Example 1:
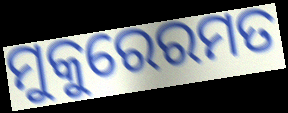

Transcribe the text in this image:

ମୁକୁରେରମତ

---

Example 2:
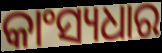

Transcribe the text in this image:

କାଂସ୍ୟଧାର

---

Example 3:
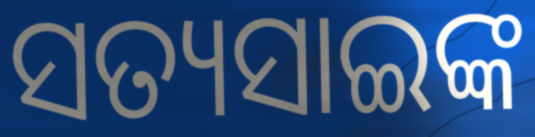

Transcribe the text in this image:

ସତ୍ୟସାଇଙ୍କ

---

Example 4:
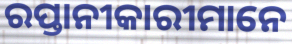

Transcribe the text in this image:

ରପ୍ତାନୀକାରୀମାନେ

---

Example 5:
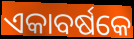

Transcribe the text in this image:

ଏକାବର୍ଷକେ